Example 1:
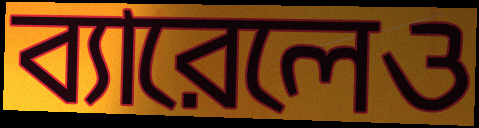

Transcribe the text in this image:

ব্যারেলেও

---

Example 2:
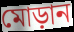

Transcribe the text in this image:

মোড়ান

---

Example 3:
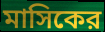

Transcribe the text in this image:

মাসিকের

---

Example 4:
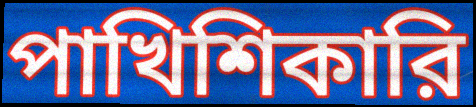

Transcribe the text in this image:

পাখিশিকারি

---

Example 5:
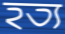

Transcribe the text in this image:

হত্য